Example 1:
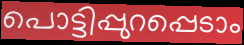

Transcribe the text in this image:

പൊട്ടിപ്പുറപ്പെടാം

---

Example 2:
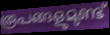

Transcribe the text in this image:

രൂപങ്ങളുമുണ്ട്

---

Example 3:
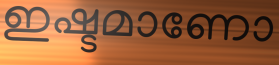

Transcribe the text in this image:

ഇഷ്ടമാണോ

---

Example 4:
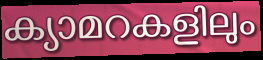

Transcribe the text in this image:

ക്യാമറകളിലും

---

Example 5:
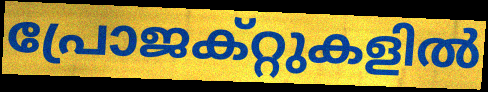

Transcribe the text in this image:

പ്രോജക്റ്റുകളിൽ